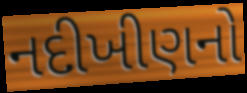
નદીખીણનો